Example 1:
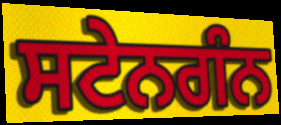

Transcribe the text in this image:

ਸਟੇਨਗੰਨ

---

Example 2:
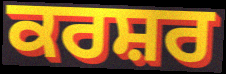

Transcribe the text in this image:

ਕਰਸ਼ਰ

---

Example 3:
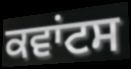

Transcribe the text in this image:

ਕਵਾਂਟਸ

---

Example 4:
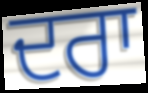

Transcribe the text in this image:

ਦਰਾ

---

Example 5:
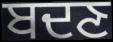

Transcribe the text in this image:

ਬਦਣ